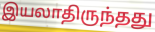
இயலாதிருந்தது